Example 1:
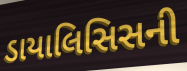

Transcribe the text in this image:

ડાયાલિસિસની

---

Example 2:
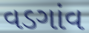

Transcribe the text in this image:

વડગાંવ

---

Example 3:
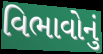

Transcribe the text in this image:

વિભાવોનું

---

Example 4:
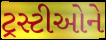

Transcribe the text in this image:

ટ્રસ્ટીઓને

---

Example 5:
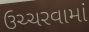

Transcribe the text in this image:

ઉચ્ચરવામાં